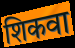
शिकवा